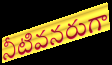
నీటివనరుగా